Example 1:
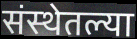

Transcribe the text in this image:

संस्थेतल्या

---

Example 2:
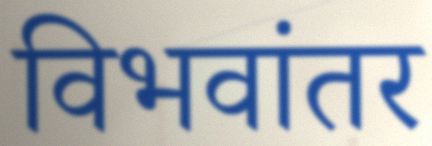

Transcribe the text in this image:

विभवांतर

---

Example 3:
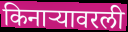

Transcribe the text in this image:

किनाऱ्यावरली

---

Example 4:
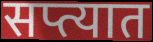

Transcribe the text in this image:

सप्त्यात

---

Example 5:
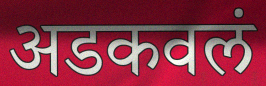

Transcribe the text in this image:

अडकवलं